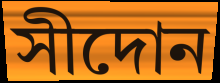
সীদোন